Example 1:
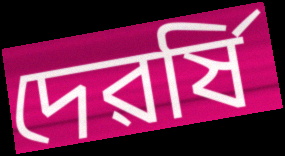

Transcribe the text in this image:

দেৱৰ্ষি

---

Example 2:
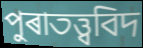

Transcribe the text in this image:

পুৰাতত্ত্ববিদ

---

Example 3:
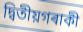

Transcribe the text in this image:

দ্বিতীয়গৰাকী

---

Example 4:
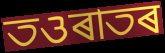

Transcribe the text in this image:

তওৰাতৰ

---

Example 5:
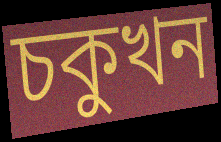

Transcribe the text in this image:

চকুখন